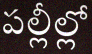
పల్లీల్లో